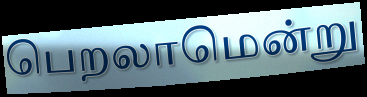
பெறலாமென்று